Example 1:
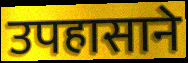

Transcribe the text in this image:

उपहासाने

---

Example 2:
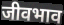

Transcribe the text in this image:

जीवभाव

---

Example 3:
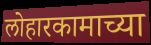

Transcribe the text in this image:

लोहारकामाच्या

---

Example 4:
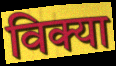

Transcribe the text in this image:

विक्या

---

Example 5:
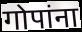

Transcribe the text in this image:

गोपांना